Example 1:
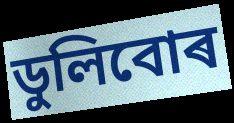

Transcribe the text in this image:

ডুলিবোৰ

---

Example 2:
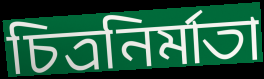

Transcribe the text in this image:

চিত্ৰনিৰ্মাতা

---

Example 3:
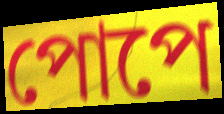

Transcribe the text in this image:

পোপে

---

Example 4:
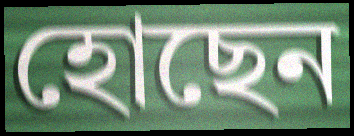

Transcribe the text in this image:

হোছেন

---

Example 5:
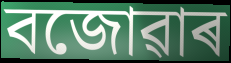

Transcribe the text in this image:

বজোৱাৰ